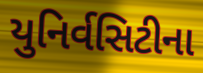
યુનિર્વસિટીના